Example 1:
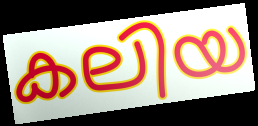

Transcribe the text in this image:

കലിയ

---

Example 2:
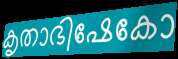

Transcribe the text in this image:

കൃതാഭിഷേകോ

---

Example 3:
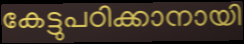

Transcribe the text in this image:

കേട്ടുപഠിക്കാനായി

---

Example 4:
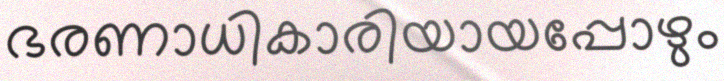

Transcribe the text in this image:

ഭരണാധികാരിയായപ്പോഴും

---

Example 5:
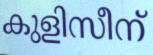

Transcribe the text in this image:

കുളിസീന്